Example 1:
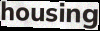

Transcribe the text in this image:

housing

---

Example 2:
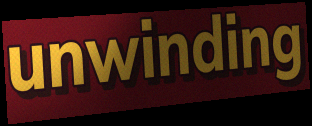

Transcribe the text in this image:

unwinding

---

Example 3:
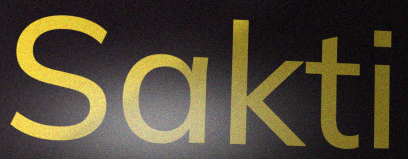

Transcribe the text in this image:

Sakti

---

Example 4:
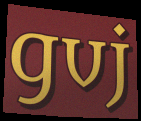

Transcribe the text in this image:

guj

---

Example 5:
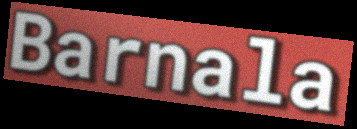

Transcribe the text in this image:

Barnala